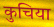
कुचिया